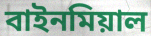
বাইনমিয়াল